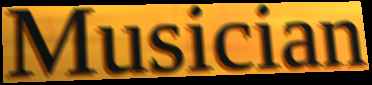
Musician